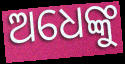
ଅଧେଙ୍କୁ